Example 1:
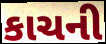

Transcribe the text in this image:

કાચની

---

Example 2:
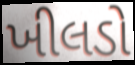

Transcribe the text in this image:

ખીલડો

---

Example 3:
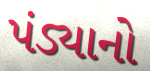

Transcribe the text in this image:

પંડ્યાનો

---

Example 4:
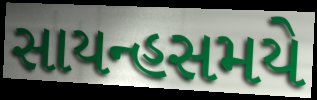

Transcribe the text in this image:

સાયન્હસમયે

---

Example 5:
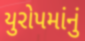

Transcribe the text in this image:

યુરોપમાંનું